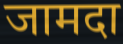
जामदा